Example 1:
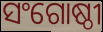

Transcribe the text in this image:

ସଂଗୋଷ୍ଠୀ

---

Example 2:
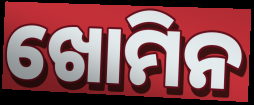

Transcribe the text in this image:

ଖୋମିନ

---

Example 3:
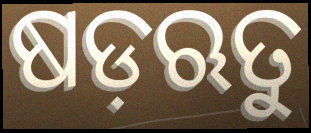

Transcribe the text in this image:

ଷଡ଼ଋତୁ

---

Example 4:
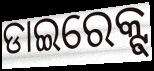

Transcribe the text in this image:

ଡାଇରେକ୍ଟ୍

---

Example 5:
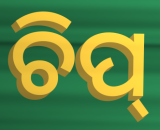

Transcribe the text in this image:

ଚିପ୍